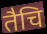
तैचि